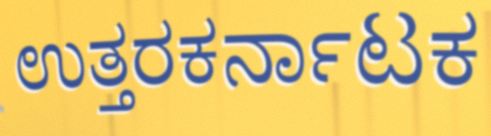
ಉತ್ತರಕರ್ನಾಟಕ